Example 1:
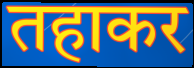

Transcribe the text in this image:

तहाकर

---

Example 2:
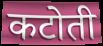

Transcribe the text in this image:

कटोती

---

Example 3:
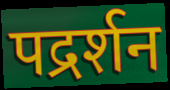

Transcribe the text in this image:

पद्रर्शन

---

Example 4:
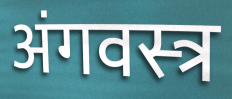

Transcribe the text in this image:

अंगवस्त्र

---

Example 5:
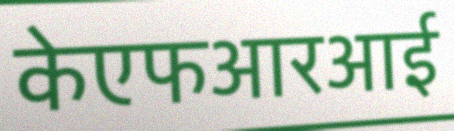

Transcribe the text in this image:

केएफआरआई